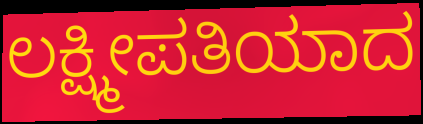
ಲಕ್ಷ್ಮೀಪತಿಯಾದ